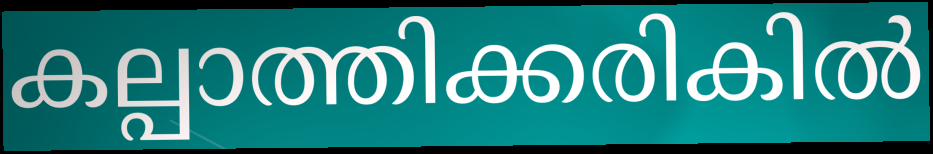
കല്പാത്തിക്കരികിൽ